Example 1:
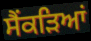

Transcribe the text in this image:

ਸੈਂਕੜਿਆਂ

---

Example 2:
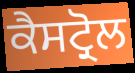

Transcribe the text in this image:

ਕੈਸਟ੍ਰੋਲ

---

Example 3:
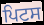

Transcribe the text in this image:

ਪਿਟਸ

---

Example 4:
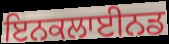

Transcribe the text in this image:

ਇਨਕਲਾਈਨਡ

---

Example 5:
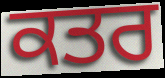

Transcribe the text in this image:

ਕਤਰ